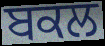
ਬਕਲ